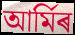
আৰ্মিৰ